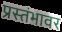
प्रस्तंभावर